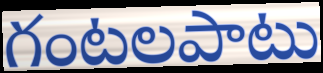
గంటలపాటు